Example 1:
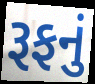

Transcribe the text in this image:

રૂફનું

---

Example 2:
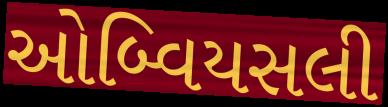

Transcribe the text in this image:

ઓબ્વિયસલી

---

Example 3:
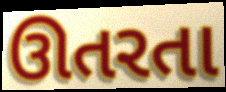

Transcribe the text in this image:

ઊતરતા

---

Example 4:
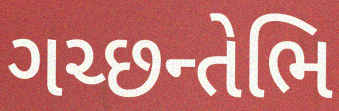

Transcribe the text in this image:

ગચ્છન્તેભિ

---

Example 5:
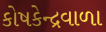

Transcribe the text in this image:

કોષકેન્દ્રવાળા